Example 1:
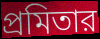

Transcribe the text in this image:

প্রমিতার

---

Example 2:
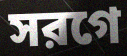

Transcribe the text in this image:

সরগে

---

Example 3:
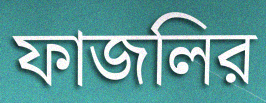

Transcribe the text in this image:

ফাজলির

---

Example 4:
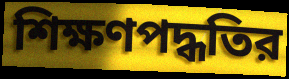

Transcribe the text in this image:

শিক্ষণপদ্ধতির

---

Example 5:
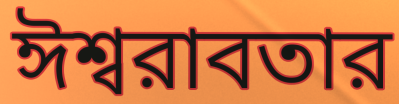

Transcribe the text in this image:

ঈশ্বরাবতার